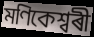
মণিকেশ্বৰী